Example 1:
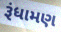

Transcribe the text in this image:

રૂંધામણ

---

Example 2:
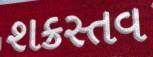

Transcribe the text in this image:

શક્રસ્તવ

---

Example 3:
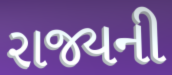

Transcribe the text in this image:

રાજ્યની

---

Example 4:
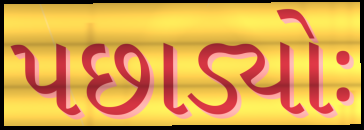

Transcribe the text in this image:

પછાડ્યોઃ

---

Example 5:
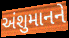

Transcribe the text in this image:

અંશુમાનને